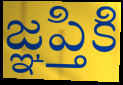
జ్ఞప్తికి